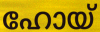
ഹോയ്